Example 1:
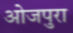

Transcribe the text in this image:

ओजपुरा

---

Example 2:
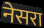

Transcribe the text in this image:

नेसरा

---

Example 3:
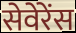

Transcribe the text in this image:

सेवेरेंस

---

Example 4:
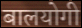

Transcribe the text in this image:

बालयोगी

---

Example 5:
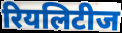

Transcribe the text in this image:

रियलिटीज